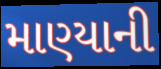
માણ્યાની